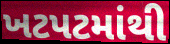
ખટપટમાંથી